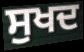
ਸੁਖਦ